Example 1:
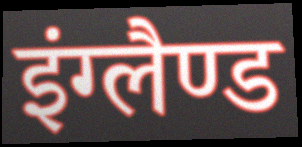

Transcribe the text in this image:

इंग्लैण्ड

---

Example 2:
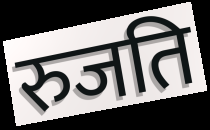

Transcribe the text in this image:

रुजति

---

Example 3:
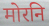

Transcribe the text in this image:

मोरनि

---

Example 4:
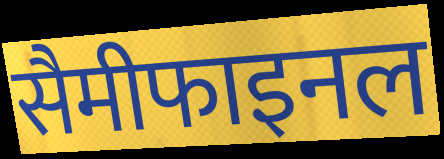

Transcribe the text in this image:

सैमीफाइनल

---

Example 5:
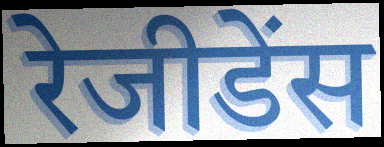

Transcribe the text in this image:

रेजीडेंस